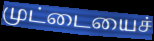
முட்டையைச்